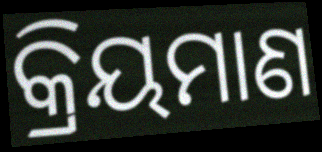
କ୍ରିୟମାଣ